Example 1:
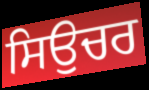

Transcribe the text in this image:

ਸਿਉਚਰ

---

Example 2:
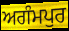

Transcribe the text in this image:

ਅਗੰਮਪੁਰ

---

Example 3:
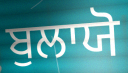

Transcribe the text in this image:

ਬੁਲਾਯੋ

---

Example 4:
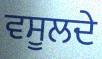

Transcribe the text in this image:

ਵਸੂਲਦੇ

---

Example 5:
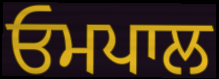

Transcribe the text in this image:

ਓਮਪਾਲ